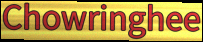
Chowringhee